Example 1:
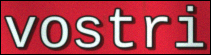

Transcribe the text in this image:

vostri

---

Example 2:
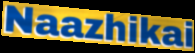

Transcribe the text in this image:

Naazhikai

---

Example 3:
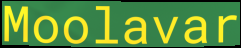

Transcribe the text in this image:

Moolavar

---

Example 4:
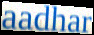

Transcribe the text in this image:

aadhar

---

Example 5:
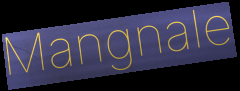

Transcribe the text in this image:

Mangnale